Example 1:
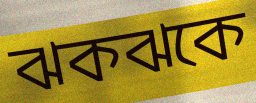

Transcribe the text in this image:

ঝকঝকে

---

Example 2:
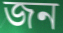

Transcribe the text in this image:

জন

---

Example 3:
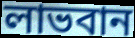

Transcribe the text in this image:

লাভবান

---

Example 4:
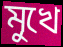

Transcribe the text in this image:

মুখে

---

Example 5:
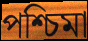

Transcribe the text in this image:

পশ্চিমা